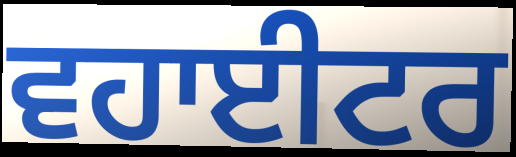
ਵਹਾਈਟਰ